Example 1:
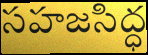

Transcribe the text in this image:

సహజసిద్ధ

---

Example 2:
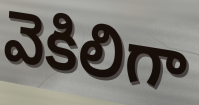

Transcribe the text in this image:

వెకిలిగా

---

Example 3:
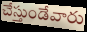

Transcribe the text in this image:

చేస్తుండేవారు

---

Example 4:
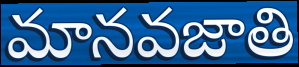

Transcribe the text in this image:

మానవజాతి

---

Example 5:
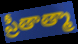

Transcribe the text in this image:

ప్రీతాత్మా